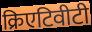
क्रिएटिवीटी